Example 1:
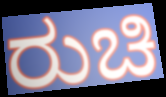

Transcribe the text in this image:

ರುಚಿ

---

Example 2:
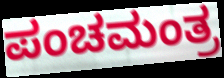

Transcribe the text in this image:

ಪಂಚಮಂತ್ರ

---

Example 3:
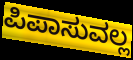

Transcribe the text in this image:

ಪಿಪಾಸುವಲ್ಲ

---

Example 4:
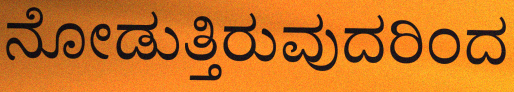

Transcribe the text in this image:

ನೋಡುತ್ತಿರುವುದರಿಂದ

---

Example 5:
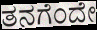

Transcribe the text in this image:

ತನಗೆಂದೇ